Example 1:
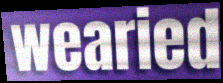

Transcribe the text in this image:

wearied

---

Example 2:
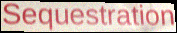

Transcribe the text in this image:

Sequestration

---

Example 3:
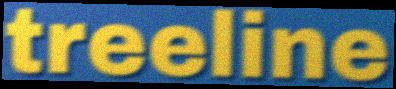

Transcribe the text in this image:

treeline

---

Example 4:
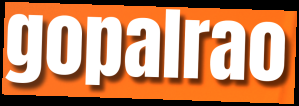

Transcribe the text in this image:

gopalrao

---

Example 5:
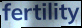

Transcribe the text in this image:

fertility